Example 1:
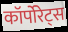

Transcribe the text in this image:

कॉर्पोरेट्स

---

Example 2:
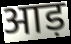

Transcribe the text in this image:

आड़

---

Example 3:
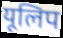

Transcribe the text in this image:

यूलिप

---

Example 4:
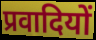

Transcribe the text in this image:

प्रवादियों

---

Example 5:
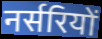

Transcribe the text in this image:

नर्सरियों